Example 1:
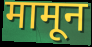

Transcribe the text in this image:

मामून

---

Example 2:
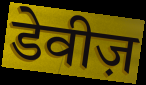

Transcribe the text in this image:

डेवीज़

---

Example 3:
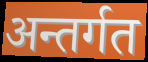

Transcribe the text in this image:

अन्तर्गत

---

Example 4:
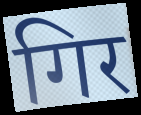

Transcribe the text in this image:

गिर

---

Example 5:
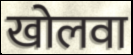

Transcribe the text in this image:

खोलवा